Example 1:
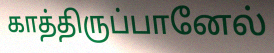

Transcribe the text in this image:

காத்திருப்பானேல்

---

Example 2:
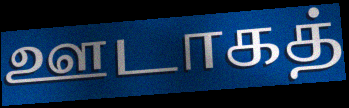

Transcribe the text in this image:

ஊடாகத்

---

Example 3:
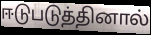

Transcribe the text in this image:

ஈடுபடுத்தினால்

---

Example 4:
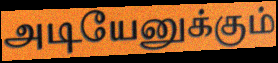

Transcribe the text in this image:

அடியேனுக்கும்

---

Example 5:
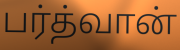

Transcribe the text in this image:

பர்த்வான்